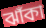
ঝাঁকা